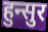
हुन्सुर